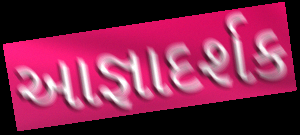
આજ્ઞાદર્શક